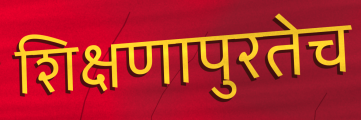
शिक्षणापुरतेच